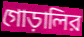
গোড়ালির